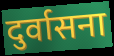
दुर्वासना